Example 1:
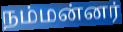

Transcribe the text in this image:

நம்மன்னர்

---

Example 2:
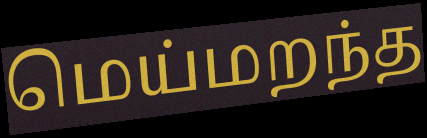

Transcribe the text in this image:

மெய்மறந்த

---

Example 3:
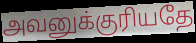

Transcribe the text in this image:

அவனுக்குரியதே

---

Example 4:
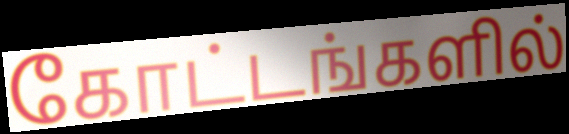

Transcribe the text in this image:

கோட்டங்களில்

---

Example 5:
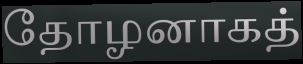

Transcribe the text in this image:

தோழனாகத்